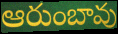
ఆరుంబావు